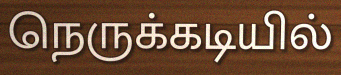
நெருக்கடியில்